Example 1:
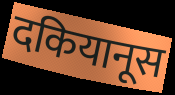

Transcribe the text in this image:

दकियानूस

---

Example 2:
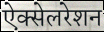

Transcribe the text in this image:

ऐक्सेलरेशन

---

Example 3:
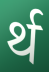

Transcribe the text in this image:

र्थ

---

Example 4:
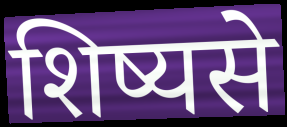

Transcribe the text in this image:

शिष्यसे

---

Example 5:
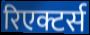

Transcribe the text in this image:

रिएक्टर्स